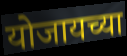
योजायच्या